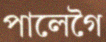
পালেগৈ